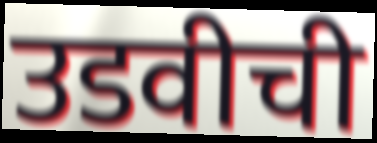
उडवीची